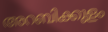
അറബിക്കുളം